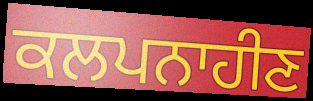
ਕਲਪਨਾਹੀਣ